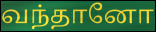
வந்தானோ